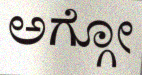
ಅಗ್ಗೋ